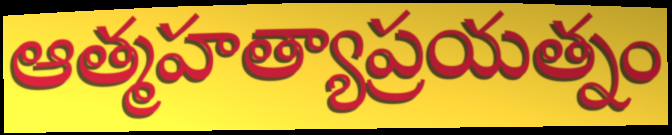
ఆత్మహత్యాప్రయత్నం